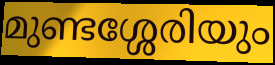
മുണ്ടശ്ശേരിയും